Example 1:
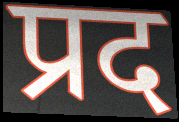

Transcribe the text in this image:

प्रद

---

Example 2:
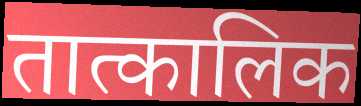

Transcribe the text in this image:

तात्कालिक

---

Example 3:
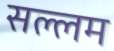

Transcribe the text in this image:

सल्‍लम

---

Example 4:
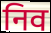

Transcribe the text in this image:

निव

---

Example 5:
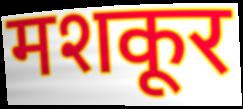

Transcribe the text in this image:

मशकूर